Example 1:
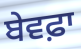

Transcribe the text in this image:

ਬੇਵਫ਼ਾ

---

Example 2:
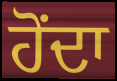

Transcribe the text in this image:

ਹੋਂਦਾ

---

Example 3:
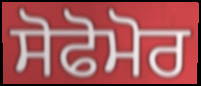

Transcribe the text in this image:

ਸੋਫੋਮੋਰ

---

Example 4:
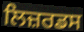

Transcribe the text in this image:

ਲਿਜ਼ਰਡਸ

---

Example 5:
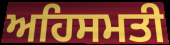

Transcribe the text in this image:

ਅਹਿਸਮਤੀ